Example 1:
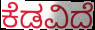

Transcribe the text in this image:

ಕೆಡವಿದೆ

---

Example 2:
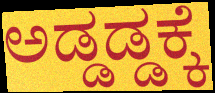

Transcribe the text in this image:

ಅಡ್ಡಡ್ಡಕ್ಕೆ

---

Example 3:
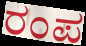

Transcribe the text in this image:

ರಂಪ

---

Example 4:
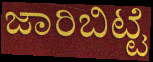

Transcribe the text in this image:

ಜಾರಿಬಿಟ್ಟೆ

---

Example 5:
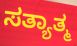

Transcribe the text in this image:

ಸತ್ಯಾತ್ಮ